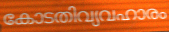
കോടതിവ്യവഹാരം